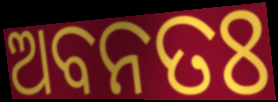
ଅବନତଃ